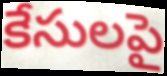
కేసులపై